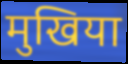
मुखिया